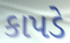
કાપડે